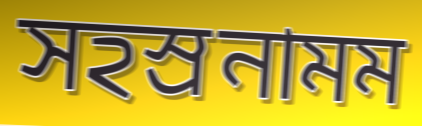
সহস্রনামম